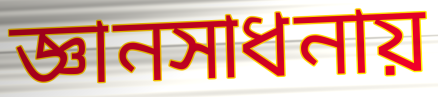
জ্ঞানসাধনায়